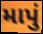
માપું